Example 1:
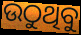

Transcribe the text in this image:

ଉଠୁଥିବୁ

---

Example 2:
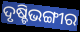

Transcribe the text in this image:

ଦୃଷ୍ଚିଭଙ୍ଗୀର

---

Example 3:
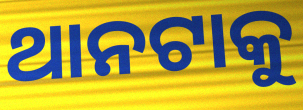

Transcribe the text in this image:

ଥାନଟାକୁ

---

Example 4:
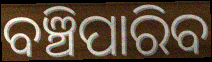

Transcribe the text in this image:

ବଞ୍ଚିପାରିବ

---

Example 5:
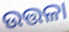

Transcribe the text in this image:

ଉତ୍ତଳା